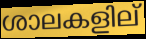
ശാലകളില്